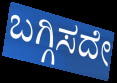
ಬಗ್ಗಿಸದೇ